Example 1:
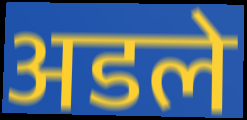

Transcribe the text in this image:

अडले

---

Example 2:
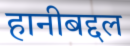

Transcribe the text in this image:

हानीबद्दल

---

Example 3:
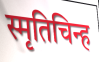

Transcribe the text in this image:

स्मृतिचिन्ह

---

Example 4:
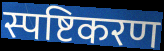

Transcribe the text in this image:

स्पष्टिकरण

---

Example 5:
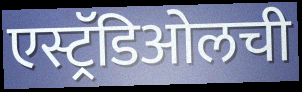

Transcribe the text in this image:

एस्ट्रॅडिओलची